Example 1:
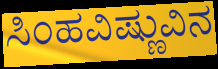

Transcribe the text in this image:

ಸಿಂಹವಿಷ್ಣುವಿನ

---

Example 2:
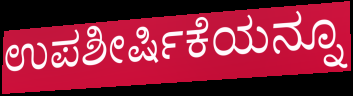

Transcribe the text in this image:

ಉಪಶೀರ್ಷಿಕೆಯನ್ನೂ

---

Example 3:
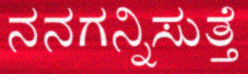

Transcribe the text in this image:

ನನಗನ್ನಿಸುತ್ತೆ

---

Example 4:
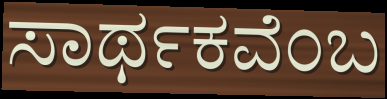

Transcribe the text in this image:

ಸಾರ್ಥಕವೆಂಬ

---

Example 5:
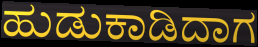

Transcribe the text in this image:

ಹುಡುಕಾಡಿದಾಗ